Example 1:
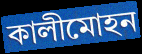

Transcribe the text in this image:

কালীমোহন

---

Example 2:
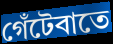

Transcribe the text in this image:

গেঁটেবাতে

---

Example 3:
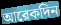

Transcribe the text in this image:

আরেকদিন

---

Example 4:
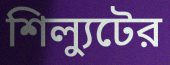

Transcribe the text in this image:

শিল্যুটের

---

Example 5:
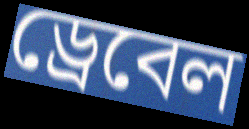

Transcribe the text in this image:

ড্রেবেল